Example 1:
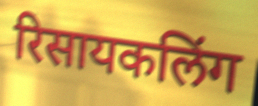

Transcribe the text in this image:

रिसायकलिंग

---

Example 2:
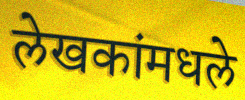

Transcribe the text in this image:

लेखकांमधले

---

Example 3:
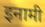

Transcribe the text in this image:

इनामी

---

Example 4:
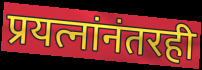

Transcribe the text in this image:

प्रयत्नांनंतरही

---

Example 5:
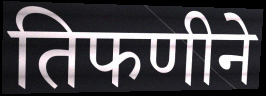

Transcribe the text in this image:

तिफणीने